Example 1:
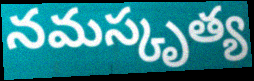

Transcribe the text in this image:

నమస్కృత్య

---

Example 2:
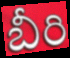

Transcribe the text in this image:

బీరి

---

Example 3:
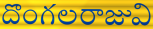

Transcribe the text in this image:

దొంగలరాజువి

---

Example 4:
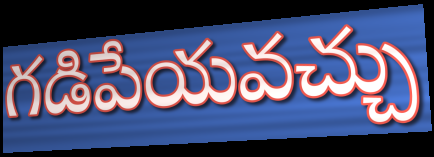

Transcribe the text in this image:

గడిపేయవచ్చు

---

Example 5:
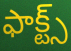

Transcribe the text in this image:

ఫాక్ట్స్